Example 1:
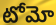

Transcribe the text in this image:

టోమో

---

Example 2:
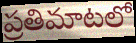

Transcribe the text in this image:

ప్రతిమాటలో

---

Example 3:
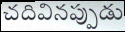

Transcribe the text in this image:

చదివినప్పుడు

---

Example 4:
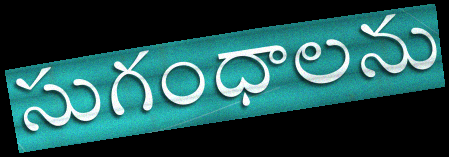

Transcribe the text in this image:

సుగంధాలను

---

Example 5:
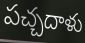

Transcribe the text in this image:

పచ్చదాళు